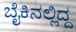
ಬೈಕಿನಲ್ಲಿದ್ದ